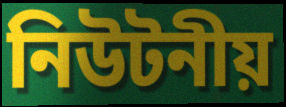
নিউটনীয়